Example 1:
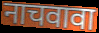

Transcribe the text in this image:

नाचवावा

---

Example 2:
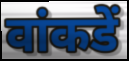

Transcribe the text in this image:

वांकडें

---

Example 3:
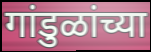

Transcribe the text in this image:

गांडुळांच्या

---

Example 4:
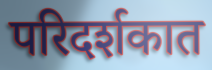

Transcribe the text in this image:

परिदर्शकात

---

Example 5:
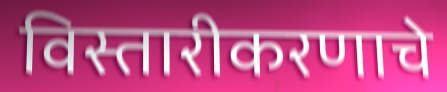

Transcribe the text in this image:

विस्तारीकरणाचे